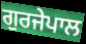
ਗੁਰਜੇਪਾਲ